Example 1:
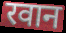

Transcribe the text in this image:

रवान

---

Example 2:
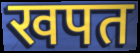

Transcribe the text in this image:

खपत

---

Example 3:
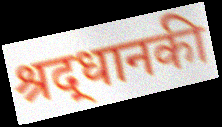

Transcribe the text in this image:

श्रद्धानकी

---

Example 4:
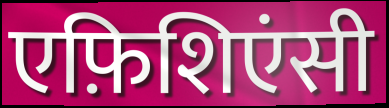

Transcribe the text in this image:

एफ़िशिएंसी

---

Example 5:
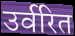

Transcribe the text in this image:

उर्वरित